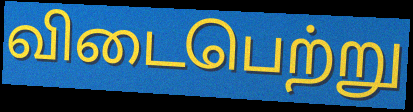
விடைபெற்று